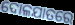
ଦୋଳଯାତରେ